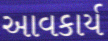
આવકાર્ય